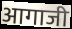
आगाजी